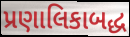
પ્રણાલિકાબદ્ધ